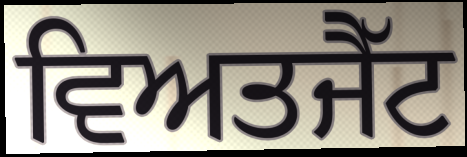
ਵਿਅਤਜੈੱਟ